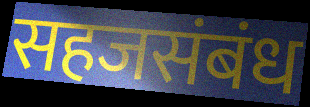
सहजसंबंध